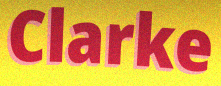
Clarke